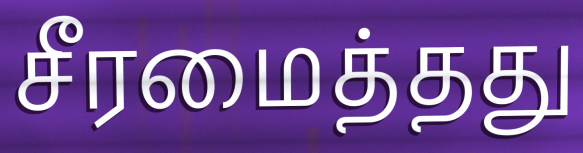
சீரமைத்தது